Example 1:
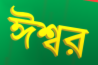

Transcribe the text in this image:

ঈশ্বর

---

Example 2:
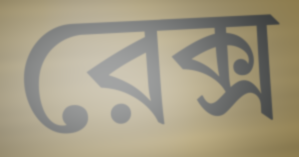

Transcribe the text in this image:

রেক্স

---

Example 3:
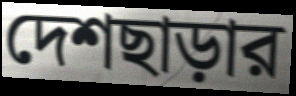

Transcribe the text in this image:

দেশছাড়ার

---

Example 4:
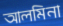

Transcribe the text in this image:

আলমিনা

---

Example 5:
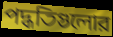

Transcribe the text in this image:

পদ্ধতিগুলোর